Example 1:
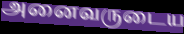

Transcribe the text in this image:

அனைவருடைய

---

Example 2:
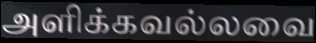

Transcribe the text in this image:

அளிக்கவல்லவை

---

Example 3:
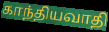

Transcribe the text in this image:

காந்தியவாதி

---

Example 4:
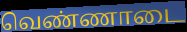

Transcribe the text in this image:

வெண்ணாடை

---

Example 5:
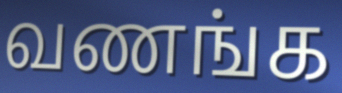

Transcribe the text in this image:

வணங்க